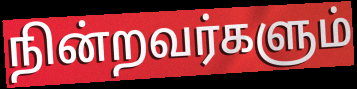
நின்றவர்களும்